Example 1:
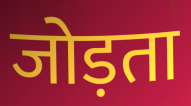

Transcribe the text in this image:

जोड़ता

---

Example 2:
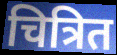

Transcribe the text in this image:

चित्रित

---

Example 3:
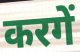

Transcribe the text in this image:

करगें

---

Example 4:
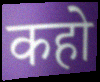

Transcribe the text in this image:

कहो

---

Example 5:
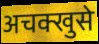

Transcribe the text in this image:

अचक्खुसे